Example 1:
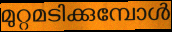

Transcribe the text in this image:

മുറ്റമടിക്കുമ്പോൾ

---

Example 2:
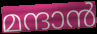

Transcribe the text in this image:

മന്ദാൻ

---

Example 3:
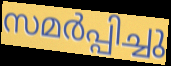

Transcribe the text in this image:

സമർപ്പിച്ചു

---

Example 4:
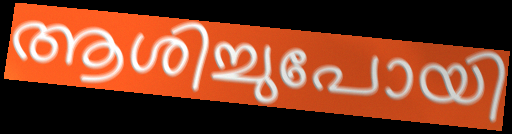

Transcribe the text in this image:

ആശിച്ചുപോയി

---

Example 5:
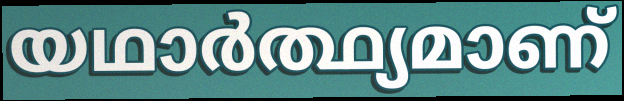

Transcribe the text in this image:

യഥാർത്ഥ്യമാണ്